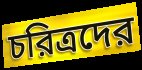
চরিত্রদের